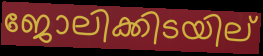
ജോലിക്കിടയില്